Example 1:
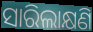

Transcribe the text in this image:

ସାରିଲାକ୍ଷଣି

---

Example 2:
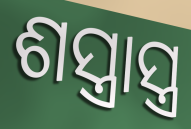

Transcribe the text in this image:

ଶସ୍ତ୍ରାସ୍ତ୍ର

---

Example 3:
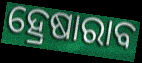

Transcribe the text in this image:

ହ୍ରେଷାରାବ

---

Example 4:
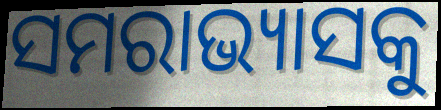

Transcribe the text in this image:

ସମରାଭ୍ୟାସକୁ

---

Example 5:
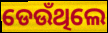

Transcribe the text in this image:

ଡେଉଁଥିଲେ